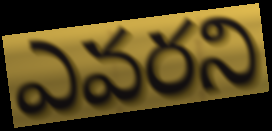
ఎవరని